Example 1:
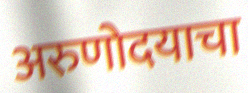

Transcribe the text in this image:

अरुणोदयाचा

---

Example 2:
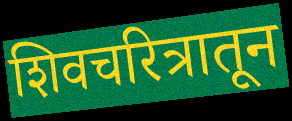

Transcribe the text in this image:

शिवचरित्रातून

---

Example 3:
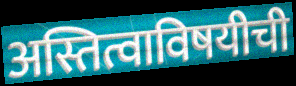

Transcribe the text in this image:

अस्तित्वाविषयीची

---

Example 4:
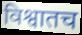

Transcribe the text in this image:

विश्वातच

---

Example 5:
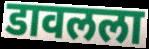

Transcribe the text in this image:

डावलला